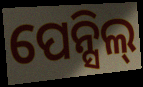
ପେନ୍ସିଲ୍